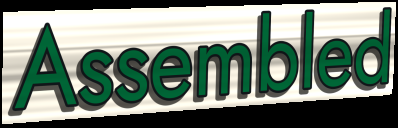
Assembled